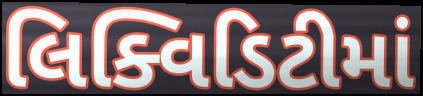
લિક્વિડિટીમાં